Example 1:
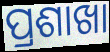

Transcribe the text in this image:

ପ୍ରଶାଖା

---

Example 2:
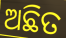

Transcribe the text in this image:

ଅଛିତ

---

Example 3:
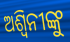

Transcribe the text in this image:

ଅଶ୍ୱିନୀଙ୍କୁ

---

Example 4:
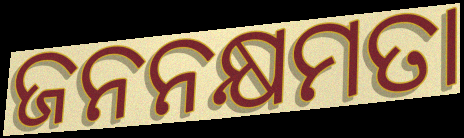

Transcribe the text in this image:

ଜନନକ୍ଷମତା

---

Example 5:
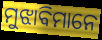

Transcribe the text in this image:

ମୁଝାବିମାନେ